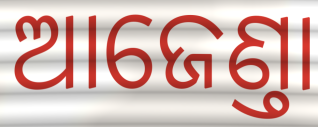
ଆଜେଣ୍ତା